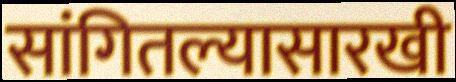
सांगितल्यासारखी